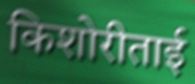
किशोरीताई